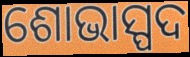
ଶୋଭାସ୍ପଦ